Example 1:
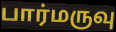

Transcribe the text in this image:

பார்மருவு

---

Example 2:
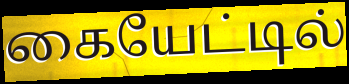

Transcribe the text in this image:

கையேட்டில்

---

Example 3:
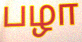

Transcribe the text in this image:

பழா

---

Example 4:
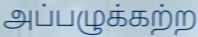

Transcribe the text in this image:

அப்பழுக்கற்ற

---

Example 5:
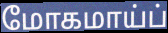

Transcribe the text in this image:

மோகமாய்ப்